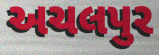
અચલપુર